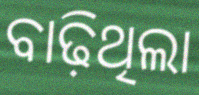
ବାଢ଼ିଥିଲା